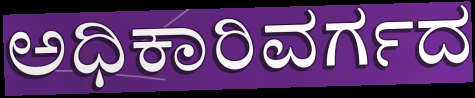
ಅಧಿಕಾರಿವರ್ಗದ